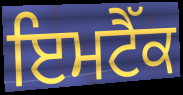
ਇਮਟੈੱਕ